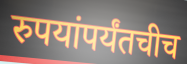
रुपयांपर्यंतचीच